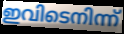
ഇവിടെനിന്ന്